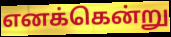
எனக்கென்று